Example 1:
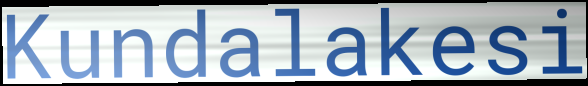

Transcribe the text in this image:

Kundalakesi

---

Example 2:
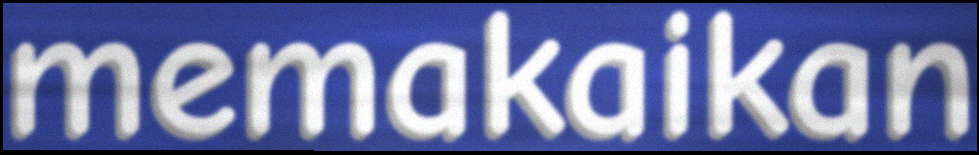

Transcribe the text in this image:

memakaikan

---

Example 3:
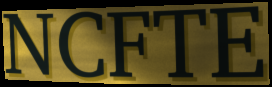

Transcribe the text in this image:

NCFTE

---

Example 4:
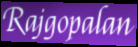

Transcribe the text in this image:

Rajgopalan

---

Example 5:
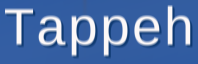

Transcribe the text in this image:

Tappeh